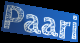
Paari